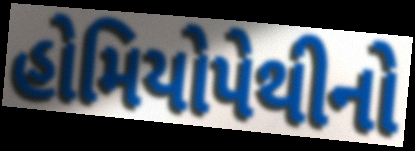
હોમિયોપેથીનો